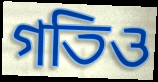
গতিও